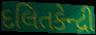
દલિતકેન્દ્રી